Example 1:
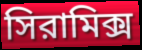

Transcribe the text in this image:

সিরামিক্স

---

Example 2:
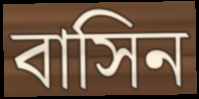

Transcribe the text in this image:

বাসিন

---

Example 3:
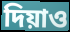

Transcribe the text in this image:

দিয়াও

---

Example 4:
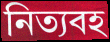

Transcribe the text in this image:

নিত্যবহ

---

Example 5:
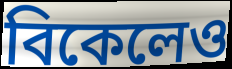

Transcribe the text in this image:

বিকেলেও